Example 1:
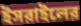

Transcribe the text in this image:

ইসরাইলের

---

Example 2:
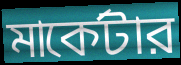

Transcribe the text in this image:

মার্কেটার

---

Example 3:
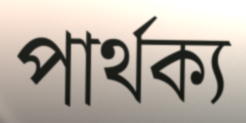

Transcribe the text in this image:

পার্থক্য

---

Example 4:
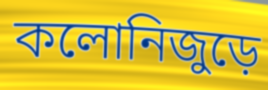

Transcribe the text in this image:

কলোনিজুড়ে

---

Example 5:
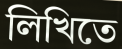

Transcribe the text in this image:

লিখিতে